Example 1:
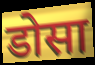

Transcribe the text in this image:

डोसा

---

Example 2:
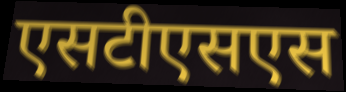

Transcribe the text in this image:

एसटीएसएस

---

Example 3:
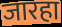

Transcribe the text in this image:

जारहा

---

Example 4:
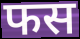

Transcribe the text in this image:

फस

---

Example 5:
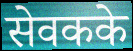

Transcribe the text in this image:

सेवकके